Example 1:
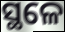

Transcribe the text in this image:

ସ୍ଥଳେ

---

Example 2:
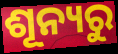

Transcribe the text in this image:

ଶୂନ୍ୟରୁ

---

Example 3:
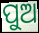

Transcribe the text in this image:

ପୁଅ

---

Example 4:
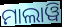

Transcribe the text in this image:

ମାଲାୱି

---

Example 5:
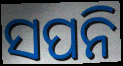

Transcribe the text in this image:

ସପନି